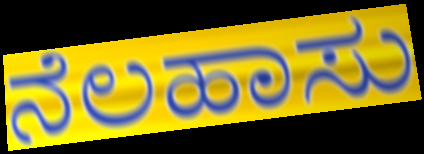
ನೆಲಹಾಸು